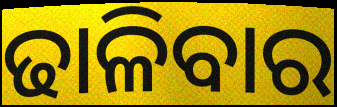
ଢାଳିବାର